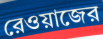
রেওয়াজের